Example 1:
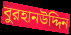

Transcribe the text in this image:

বুরহানউদ্দিন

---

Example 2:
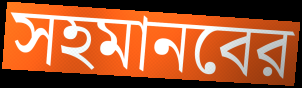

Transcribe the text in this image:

সহমানবের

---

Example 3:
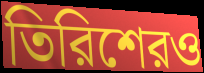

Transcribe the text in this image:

তিরিশেরও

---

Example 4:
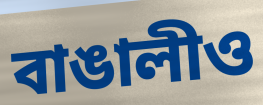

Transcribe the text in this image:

বাঙালীও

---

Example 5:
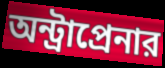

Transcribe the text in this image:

অন্ট্রাপ্রেনার